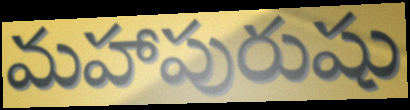
మహాపురుషు